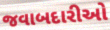
જવાબદારીઓ